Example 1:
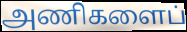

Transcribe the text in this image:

அணிகளைப்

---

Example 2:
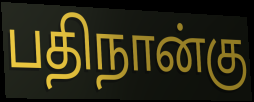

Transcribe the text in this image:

பதிநான்கு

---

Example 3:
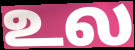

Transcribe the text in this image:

உல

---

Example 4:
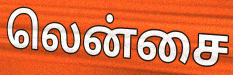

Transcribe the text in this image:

லென்சை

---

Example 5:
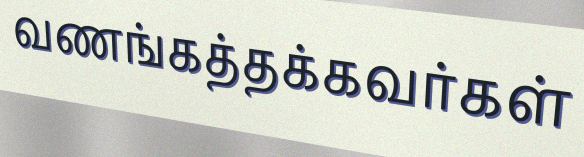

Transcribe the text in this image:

வணங்கத்தக்கவர்கள்